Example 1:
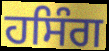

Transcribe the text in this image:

ਹਸਿੰਗ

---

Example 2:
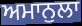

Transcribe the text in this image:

ਅਮਾਨੁਲਾ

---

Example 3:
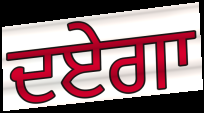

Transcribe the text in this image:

ਦਏਗਾ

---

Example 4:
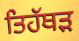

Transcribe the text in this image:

ਤਿਹੱਥੜ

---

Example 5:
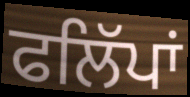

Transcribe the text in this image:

ਫਲਿੱਪਾਂ